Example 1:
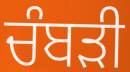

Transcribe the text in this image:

ਚੰਬੜੀ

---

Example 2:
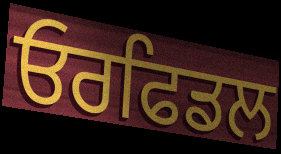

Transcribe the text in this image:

ਓਰਫਿਡਲ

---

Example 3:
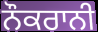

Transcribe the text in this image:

ਨੌਕਰਾਨੀ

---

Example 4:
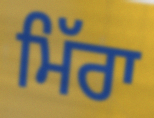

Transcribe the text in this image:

ਮਿੱਰਾ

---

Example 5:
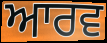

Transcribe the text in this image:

ਆਰਵ